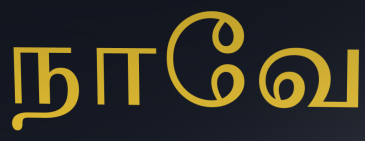
நாவே